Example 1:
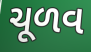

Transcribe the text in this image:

ચૂળવ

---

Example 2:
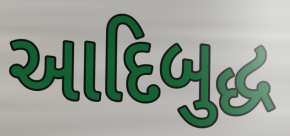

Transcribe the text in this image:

આદિબુદ્ધ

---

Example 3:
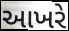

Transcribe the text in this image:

આખરે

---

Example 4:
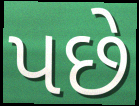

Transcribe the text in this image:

પછે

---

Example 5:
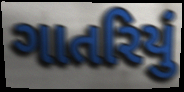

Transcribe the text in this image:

ગાતરિયું